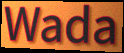
Wada